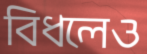
বিধলেও